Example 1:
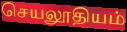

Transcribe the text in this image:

செயலூதியம்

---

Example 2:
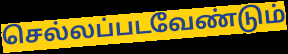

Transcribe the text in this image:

செல்லப்படவேண்டும்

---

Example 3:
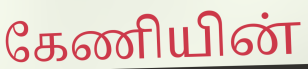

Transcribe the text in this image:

கேணியின்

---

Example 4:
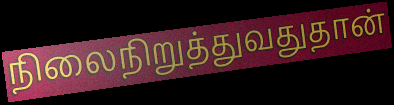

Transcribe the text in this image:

நிலைநிறுத்துவதுதான்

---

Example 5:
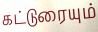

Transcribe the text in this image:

கட்டுரையும்